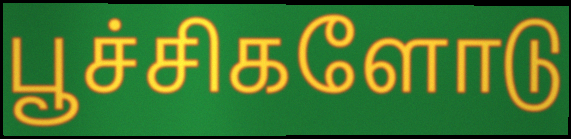
பூச்சிகளோடு